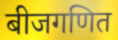
बीजगणित